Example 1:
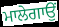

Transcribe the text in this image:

ਮਾਲੇਗਾਉਂ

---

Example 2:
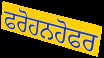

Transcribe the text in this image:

ਫਰੋਹਨਹੋਫਰ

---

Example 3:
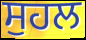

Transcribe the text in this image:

ਸੁਹਲ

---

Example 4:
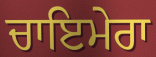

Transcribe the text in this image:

ਚਾਇਮੇਰਾ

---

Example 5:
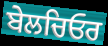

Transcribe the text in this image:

ਬੇਲਚਿਓਰ